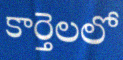
కార్తెలలో